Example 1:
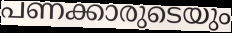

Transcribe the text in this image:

പണക്കാരുടെയും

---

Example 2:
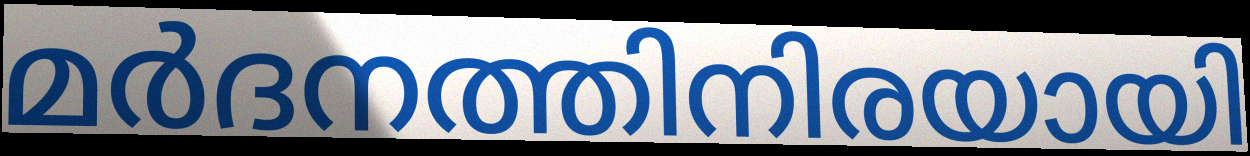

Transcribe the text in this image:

മർദനത്തിനിരയായി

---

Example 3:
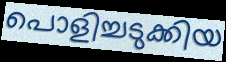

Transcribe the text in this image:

പൊളിച്ചടുക്കിയ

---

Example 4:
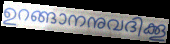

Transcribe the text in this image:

ഉറങ്ങാനനുവദിക്കൂ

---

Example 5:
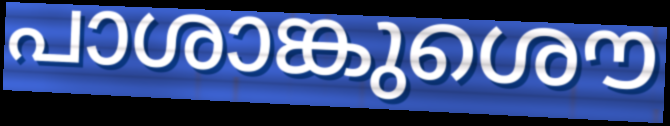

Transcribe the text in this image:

പാശാങ്കുശൌ